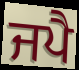
ਜਪੈ